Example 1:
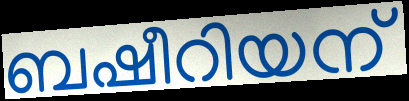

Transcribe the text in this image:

ബഷീറിയന്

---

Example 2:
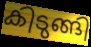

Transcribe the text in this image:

കിടുങ്ങി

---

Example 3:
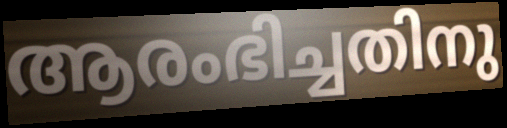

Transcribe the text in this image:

ആരംഭിച്ചതിനു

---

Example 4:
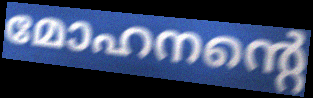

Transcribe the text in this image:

മോഹനന്റെ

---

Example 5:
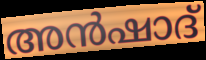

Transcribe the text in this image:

അൻഷാദ്